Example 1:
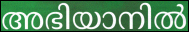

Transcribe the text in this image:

അഭിയാനിൽ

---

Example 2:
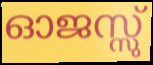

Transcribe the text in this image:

ഓജസ്സു്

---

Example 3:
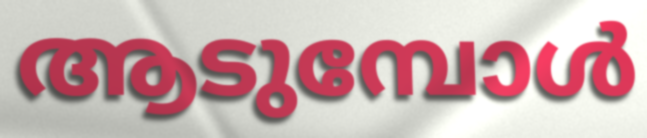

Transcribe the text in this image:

ആടുമ്പോൾ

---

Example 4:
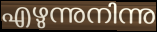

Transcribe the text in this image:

എഴുന്നുനിന്നു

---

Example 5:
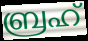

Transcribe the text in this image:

ബ്രഹ്